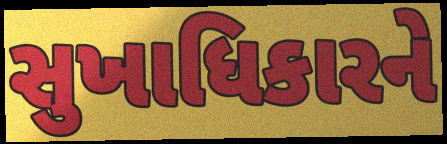
સુખાધિકારને